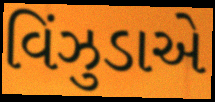
વિંઝુડાએ